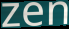
zen